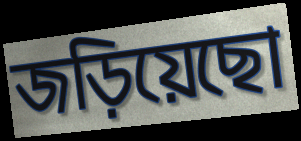
জড়িয়েছো